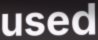
used